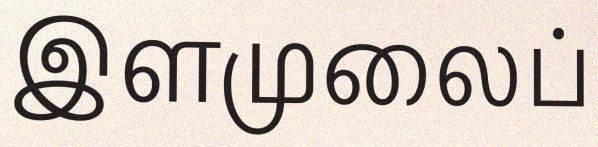
இளமுலைப்